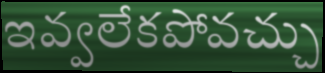
ఇవ్వలేకపోవచ్చు